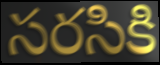
సరసికి